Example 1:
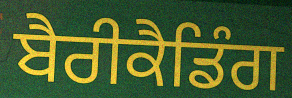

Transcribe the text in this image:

ਬੈਰੀਕੈਡਿੰਗ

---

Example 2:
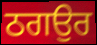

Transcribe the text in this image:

ਠਗਉਰ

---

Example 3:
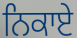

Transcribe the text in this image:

ਨਿਕਾਏ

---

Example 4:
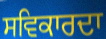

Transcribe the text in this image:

ਸਵਿਕਾਰਦਾ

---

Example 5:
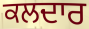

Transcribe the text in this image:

ਕਲਦਾਰ